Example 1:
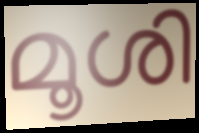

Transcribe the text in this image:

മൂശി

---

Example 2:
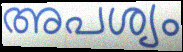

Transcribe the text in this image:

അപശ്യം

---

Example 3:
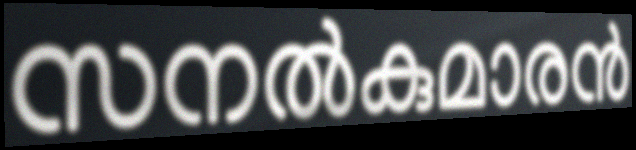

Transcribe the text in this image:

സനൽകുമാരൻ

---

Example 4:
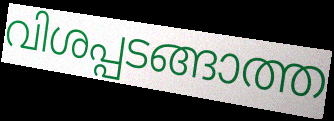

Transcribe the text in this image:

വിശപ്പടങ്ങാത്ത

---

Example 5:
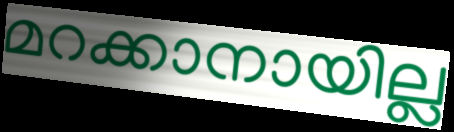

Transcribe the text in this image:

മറക്കാനായില്ല